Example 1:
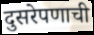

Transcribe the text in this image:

दुसरेपणाची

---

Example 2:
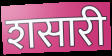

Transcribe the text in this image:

शसारी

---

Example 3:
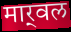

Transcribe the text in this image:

मार्वल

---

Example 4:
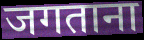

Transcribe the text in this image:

जगताना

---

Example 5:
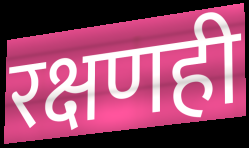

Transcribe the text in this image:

रक्षणही